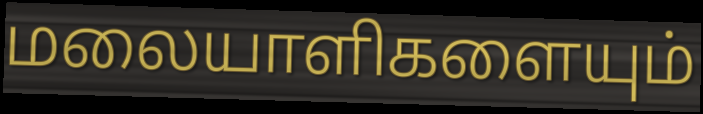
மலையாளிகளையும்